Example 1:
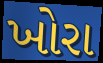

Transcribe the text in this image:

ખોરા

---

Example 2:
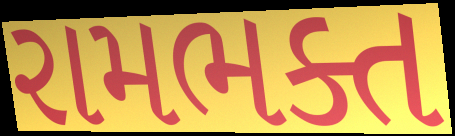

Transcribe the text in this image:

રામભક્ત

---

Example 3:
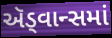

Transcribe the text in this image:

ઍડ્વાન્સમાં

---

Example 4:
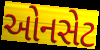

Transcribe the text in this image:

ઓનસેટ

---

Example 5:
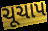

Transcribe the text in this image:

ચૂચાપ